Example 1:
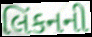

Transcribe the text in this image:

લિંકનની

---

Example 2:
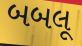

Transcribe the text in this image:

બબલૂ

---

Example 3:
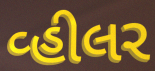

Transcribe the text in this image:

વ્હીલર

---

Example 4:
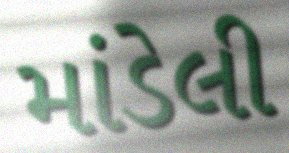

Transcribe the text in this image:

માંડેલી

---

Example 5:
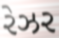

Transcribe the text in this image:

રેઝર